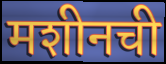
मशीनची